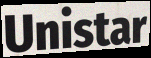
Unistar